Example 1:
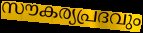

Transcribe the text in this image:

സൗകര്യപ്രദവും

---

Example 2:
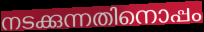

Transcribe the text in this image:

നടക്കുന്നതിനൊപ്പം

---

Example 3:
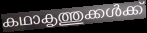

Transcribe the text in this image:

കഥാകൃത്തുക്കൾക്ക്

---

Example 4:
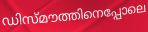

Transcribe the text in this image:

ഡിസ്മൗത്തിനെപ്പോലെ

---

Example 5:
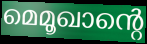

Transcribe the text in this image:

മെമൂഖാന്റെ